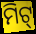
ମିଟ୍